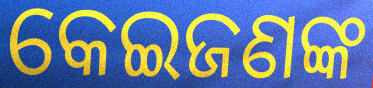
କେଇଜଣଙ୍କ